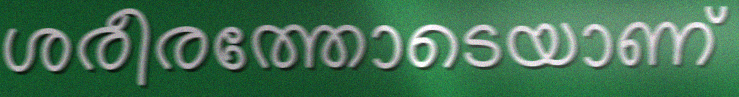
ശരീരത്തോടെയാണ്